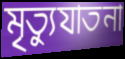
মৃত্যুযাতনা